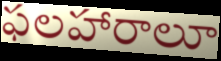
ఫలహారాలూ